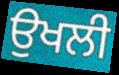
ਉਖਲੀ